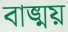
বাঙ্ময়